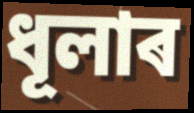
ধূলাৰ